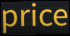
price